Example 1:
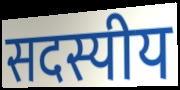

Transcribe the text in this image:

सदस्‍यीय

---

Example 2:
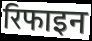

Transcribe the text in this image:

रिफाइन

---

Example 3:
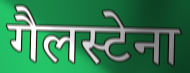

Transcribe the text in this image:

गैलस्टेना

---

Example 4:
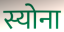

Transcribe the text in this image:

स्योना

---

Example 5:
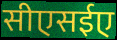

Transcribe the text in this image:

सीएसईए